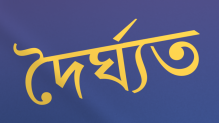
দৈৰ্ঘ্যত